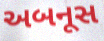
અબનૂસ